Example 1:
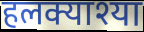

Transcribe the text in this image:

हलक्याश्या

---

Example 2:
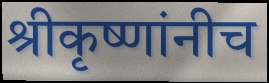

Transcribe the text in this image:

श्रीकृष्णांनीच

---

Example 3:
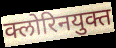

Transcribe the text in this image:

क्लोरिनयुक्त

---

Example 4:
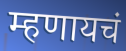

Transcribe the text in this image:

म्हणायचं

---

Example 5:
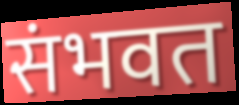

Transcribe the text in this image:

संभवत